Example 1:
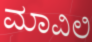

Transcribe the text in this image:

ಮಾವಿಲಿ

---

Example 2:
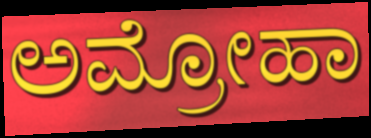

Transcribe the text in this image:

ಅಮ್ರೋಹಾ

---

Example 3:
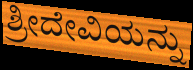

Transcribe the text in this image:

ಶ್ರೀದೇವಿಯನ್ನು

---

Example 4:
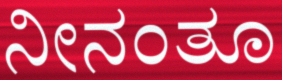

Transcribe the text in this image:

ನೀನಂತೂ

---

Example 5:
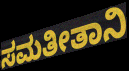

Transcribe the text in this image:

ಸಮತೀತಾನಿ